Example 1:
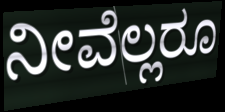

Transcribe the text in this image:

ನೀವೆಲ್ಲರೂ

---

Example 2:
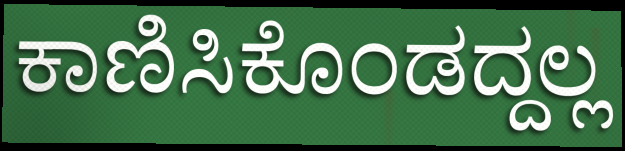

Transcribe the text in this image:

ಕಾಣಿಸಿಕೊಂಡದ್ದಲ್ಲ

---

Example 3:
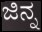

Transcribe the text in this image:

ಜಿನ್ನ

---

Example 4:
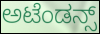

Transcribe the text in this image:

ಅಟೆಂಡನ್ಸ್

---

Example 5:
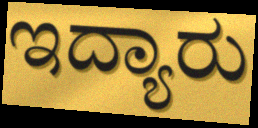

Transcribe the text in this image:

ಇದ್ಯಾರು